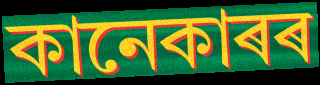
কানেকাৰৰ